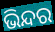
ଭିନ୍ଦର